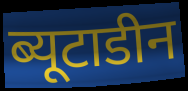
ब्यूटाडीन